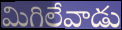
మిగిలేవాడు